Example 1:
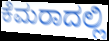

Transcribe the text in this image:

ಕೆಮರಾದಲ್ಲಿ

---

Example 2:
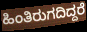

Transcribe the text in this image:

ಹಿಂತಿರುಗದಿದ್ದರೆ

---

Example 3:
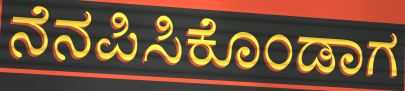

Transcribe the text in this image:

ನೆನಪಿಸಿಕೊಂಡಾಗ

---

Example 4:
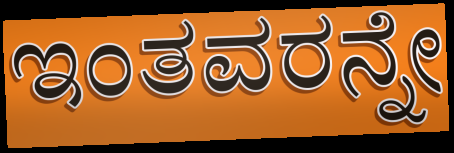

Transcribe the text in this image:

ಇಂತವರನ್ನೇ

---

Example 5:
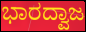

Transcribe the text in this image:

ಭಾರದ್ವಾಜ